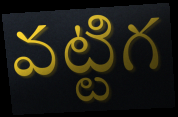
వట్టిగ